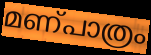
മണ്പാത്രം